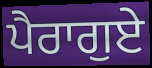
ਪੈਰਾਗੁਏ